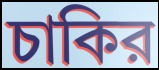
চাকির